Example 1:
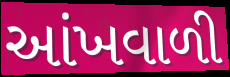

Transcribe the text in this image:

આંખવાળી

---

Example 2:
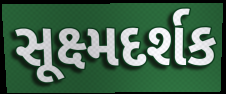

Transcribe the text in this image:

સૂક્ષ્મદર્શક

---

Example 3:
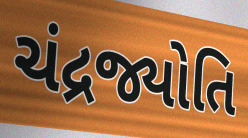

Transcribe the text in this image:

ચંદ્રજ્યોતિ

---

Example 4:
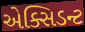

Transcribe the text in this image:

એક્સિડન્ટ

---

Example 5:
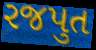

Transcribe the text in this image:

રજપુત